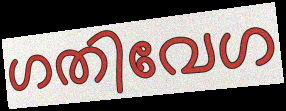
ഗതിവേഗ